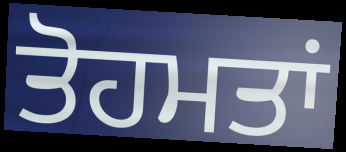
ਤੋਹਮਤਾਂ